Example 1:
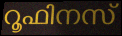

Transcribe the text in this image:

റൂഫിനസ്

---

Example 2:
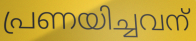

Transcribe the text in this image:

പ്രണയിച്ചവന്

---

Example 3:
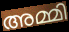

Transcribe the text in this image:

അമ്മി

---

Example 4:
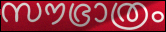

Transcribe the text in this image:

സൗഭ്രാത്രം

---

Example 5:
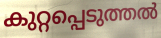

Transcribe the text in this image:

കുറ്റപ്പെടുത്തൽ